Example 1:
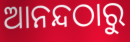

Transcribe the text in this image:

ଆନନ୍ଦଠାରୁ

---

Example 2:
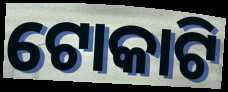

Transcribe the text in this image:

ଟୋକାଟି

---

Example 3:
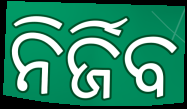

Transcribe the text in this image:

ନିର୍ଜିବ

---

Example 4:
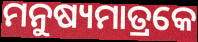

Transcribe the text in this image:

ମନୁଷ୍ୟମାତ୍ରକେ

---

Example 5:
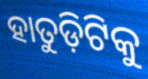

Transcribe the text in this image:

ହାତୁଡ଼ିଟିକୁ